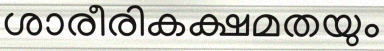
ശാരീരികക്ഷമതയും